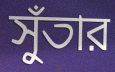
সুঁতার